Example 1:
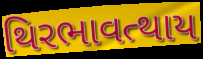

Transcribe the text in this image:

થિરભાવત્થાય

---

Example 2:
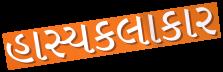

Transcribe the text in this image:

હાસ્યકલાકાર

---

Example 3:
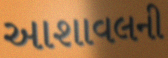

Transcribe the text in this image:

આશાવલની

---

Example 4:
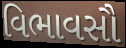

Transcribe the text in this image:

વિભાવસૌ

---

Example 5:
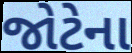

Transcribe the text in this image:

જોટેના